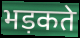
भड़कते